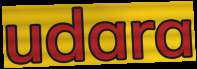
udara